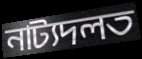
নাট্যদলত